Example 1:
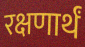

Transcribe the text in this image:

रक्षणार्थं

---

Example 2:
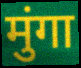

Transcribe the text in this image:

मुंगा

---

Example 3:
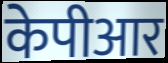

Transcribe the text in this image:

केपीआर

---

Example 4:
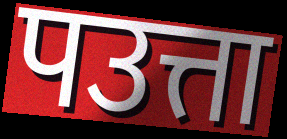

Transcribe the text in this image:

पउत्ता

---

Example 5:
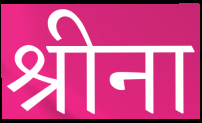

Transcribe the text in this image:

श्रीना